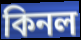
কিনল